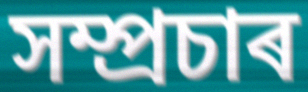
সম্প্ৰচাৰ